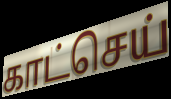
காட்செய்